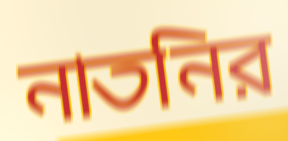
নাতনির